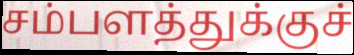
சம்பளத்துக்குச்